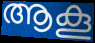
ആകൂ